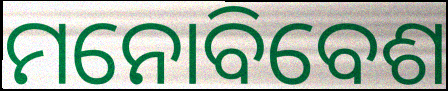
ମନୋବିବେଶ